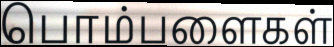
பொம்பளைகள்